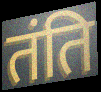
तंति